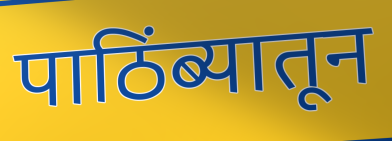
पाठिंब्यातून